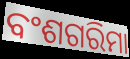
ବଂଶଗରିମା